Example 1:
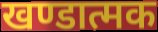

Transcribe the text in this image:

खण्डात्मक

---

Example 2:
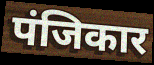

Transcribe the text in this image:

पंजिकार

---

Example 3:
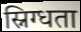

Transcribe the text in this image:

स्निग्धता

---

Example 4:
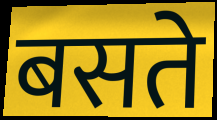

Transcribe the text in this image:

बसते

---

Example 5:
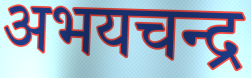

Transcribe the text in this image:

अभयचन्द्र